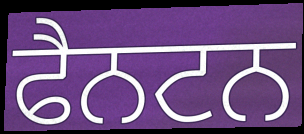
ਫੈਨਟਨ